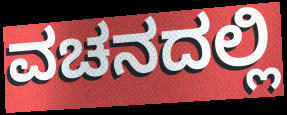
ವಚನದಲ್ಲಿ